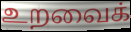
உறவைக்